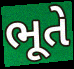
ભૂતે